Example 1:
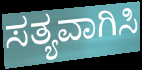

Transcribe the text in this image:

ಸತ್ಯವಾಗಿಸಿ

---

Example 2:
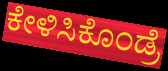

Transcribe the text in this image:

ಕೇಳಿಸಿಕೊಂಡ್ರೆ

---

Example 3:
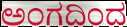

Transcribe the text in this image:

ಅಂಗದಿಂದ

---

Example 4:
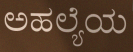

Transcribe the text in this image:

ಅಹಲ್ಯೆಯ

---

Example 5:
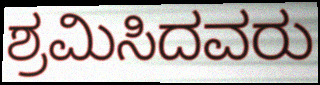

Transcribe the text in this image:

ಶ್ರಮಿಸಿದವರು